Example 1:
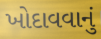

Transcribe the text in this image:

ખોદાવવાનું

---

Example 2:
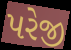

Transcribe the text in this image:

પરેજી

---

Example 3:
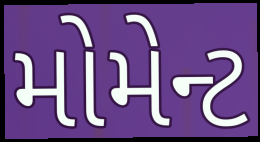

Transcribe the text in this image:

મોમેન્ટ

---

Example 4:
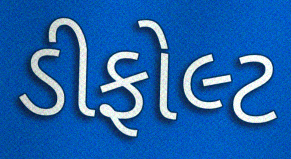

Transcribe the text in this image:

ડીફોલ્ટ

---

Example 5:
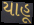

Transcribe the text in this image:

યાહૂ